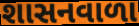
શાસનવાળા